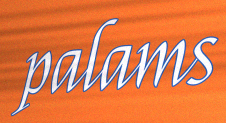
palams